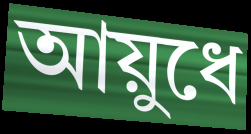
আয়ুধে